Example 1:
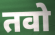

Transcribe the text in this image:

तवो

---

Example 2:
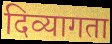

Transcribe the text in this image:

दिव्यागता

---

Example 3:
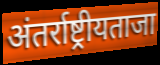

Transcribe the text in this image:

अंतर्राष्ट्रीयताजा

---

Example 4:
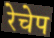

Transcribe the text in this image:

रेचेप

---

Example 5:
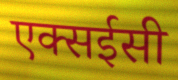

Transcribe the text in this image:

एक्सईसी